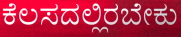
ಕೆಲಸದಲ್ಲಿರಬೇಕು